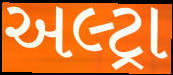
અલ્ટ્રા